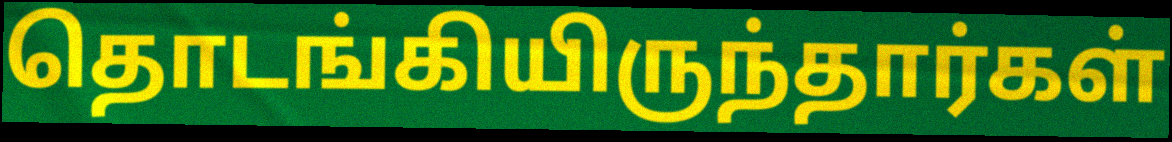
தொடங்கியிருந்தார்கள்